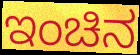
ಇಂಚಿನ